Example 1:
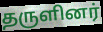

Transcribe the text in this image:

தருளினர்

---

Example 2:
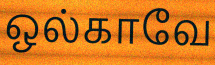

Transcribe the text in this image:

ஒல்காவே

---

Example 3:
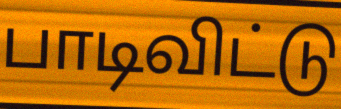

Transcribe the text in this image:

பாடிவிட்டு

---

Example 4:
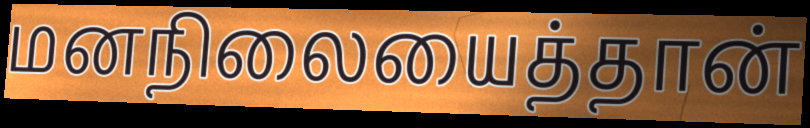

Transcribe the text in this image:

மனநிலையைத்தான்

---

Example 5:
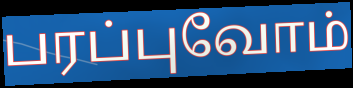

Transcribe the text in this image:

பரப்புவோம்